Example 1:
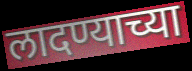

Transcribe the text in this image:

लादण्याच्या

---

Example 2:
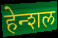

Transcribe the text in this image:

हेन्शल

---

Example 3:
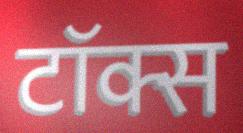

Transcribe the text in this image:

टॉक्स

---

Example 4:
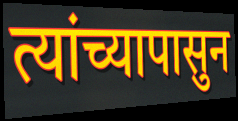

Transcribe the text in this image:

त्यांच्यापासुन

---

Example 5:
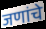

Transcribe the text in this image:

जणांचे